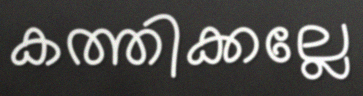
കത്തിക്കല്ലേ